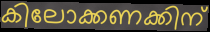
കിലോക്കണക്കിന്